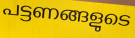
പട്ടണങ്ങളുടെ